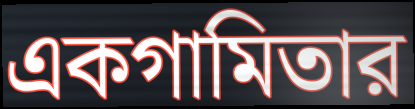
একগামিতার